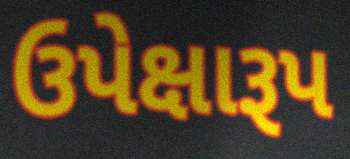
ઉપેક્ષારૂપ